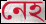
নেহ